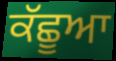
ਕੱਛੂਆ